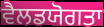
ਵੈਲਡਯੋਗਤਾ